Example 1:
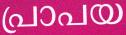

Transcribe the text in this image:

പ്രാപയ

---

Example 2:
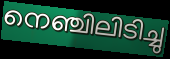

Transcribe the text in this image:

നെഞ്ചിലിടിച്ചു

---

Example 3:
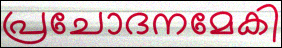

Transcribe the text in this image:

പ്രചോദനമേകി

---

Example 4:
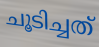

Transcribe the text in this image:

ചൂടിച്ചത്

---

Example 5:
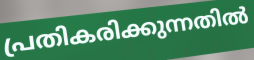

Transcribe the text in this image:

പ്രതികരിക്കുന്നതിൽ